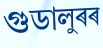
গুডালুৰৰ